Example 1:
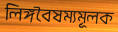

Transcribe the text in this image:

লিঙ্গবৈষম্যমূলক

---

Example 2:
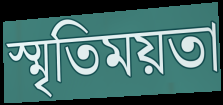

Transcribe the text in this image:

স্মৃতিময়তা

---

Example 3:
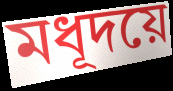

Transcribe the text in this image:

মধূদয়ে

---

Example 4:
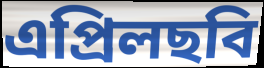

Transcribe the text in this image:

এপ্রিলছবি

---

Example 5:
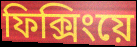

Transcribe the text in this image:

ফিক্সিংয়ে